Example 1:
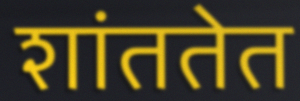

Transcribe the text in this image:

शांततेत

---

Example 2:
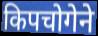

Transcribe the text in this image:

किपचोगेने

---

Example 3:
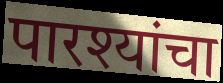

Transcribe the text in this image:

पारश्यांचा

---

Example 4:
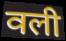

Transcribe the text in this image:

वली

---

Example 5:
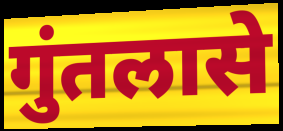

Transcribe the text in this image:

गुंतलासे